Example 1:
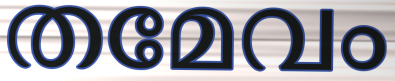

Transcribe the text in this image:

തമേവം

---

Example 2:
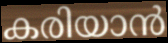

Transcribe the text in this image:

കരിയാൻ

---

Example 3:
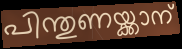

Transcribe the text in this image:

പിന്തുണയ്ക്കാന്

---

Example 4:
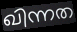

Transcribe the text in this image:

ഖിന്നത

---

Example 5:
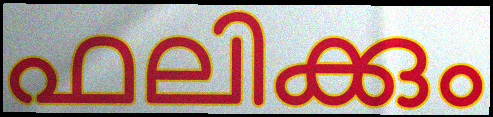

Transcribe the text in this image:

ഫലിക്കും